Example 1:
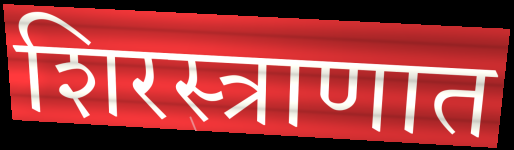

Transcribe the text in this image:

शिरस्त्राणात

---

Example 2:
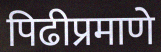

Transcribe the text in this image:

पिढीप्रमाणे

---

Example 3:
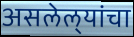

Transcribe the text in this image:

असलेल्यांचा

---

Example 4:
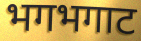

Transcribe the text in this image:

भगभगाट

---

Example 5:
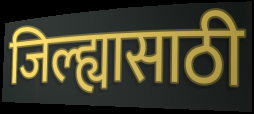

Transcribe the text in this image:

जिल्ह्यासाठी